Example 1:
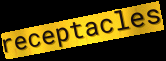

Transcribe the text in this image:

receptacles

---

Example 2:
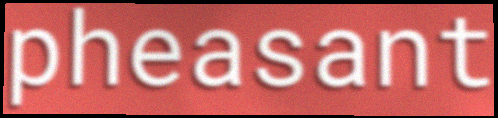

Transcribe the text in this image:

pheasant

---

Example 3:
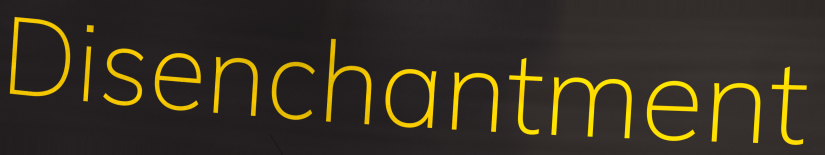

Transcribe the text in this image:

Disenchantment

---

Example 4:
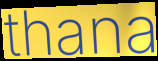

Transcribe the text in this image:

thana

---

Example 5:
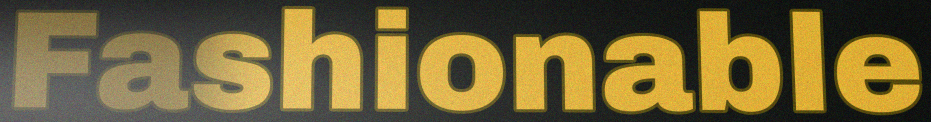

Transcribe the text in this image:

Fashionable